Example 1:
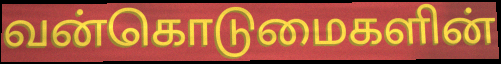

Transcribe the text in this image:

வன்கொடுமைகளின்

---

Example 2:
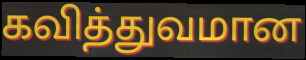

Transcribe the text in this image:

கவித்துவமான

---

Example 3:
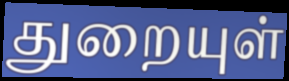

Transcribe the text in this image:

துறையுள்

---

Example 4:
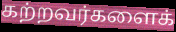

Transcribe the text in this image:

கற்றவர்களைக்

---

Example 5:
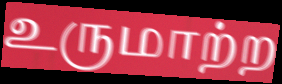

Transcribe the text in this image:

உருமாற்ற